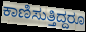
ಕಾಣಿಸುತ್ತಿದ್ದರೂ